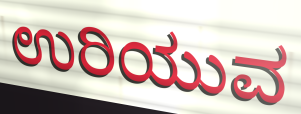
ಉರಿಯುವ